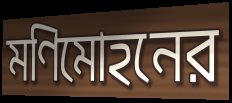
মণিমোহনের